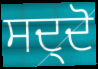
ਸਦ੍ਦੋ